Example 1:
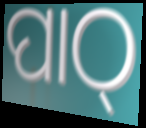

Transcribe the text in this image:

ପାଠ୍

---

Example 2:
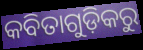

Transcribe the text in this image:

କବିତାଗୁଡ଼ିକରୁ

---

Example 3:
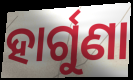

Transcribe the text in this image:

ହାର୍ଗୁଣା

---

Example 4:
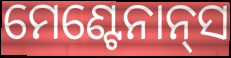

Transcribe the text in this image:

ମେଣ୍ଟେନାନ୍‌ସ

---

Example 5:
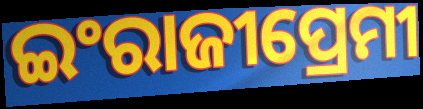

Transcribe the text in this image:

ଇଂରାଜୀପ୍ରେମୀ